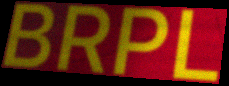
BRPL